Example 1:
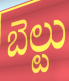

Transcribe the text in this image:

బెల్టు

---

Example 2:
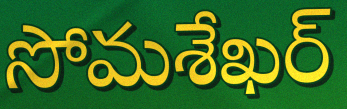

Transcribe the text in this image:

సోమశేఖర్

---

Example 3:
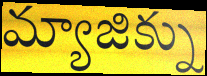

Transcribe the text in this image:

మ్యాజిక్ను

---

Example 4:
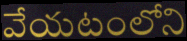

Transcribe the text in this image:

వేయటంలోని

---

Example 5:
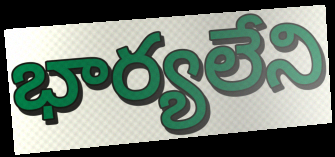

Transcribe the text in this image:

భార్యలేని